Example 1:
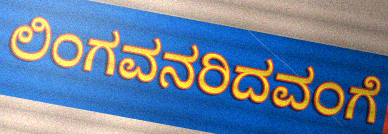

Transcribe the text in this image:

ಲಿಂಗವನರಿದವಂಗೆ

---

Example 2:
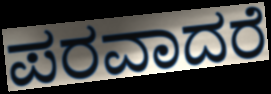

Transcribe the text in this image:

ಪರವಾದರೆ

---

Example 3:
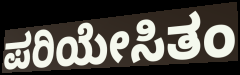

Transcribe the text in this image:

ಪರಿಯೇಸಿತಂ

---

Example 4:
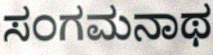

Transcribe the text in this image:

ಸಂಗಮನಾಥ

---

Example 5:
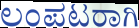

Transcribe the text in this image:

ಲಂಪಟರಾಗಿ